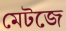
মেটজে